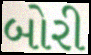
બોરી